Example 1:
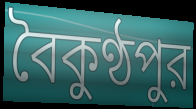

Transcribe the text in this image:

বৈকুণ্ঠপুর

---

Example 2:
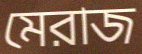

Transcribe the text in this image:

মেরাজ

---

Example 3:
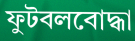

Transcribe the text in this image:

ফুটবলবোদ্ধা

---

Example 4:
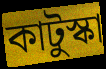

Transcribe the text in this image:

কাটুস্কা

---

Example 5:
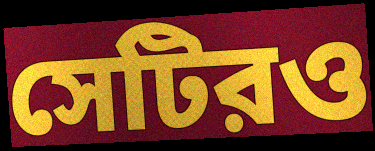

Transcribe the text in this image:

সেটিরও